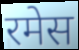
रमेस